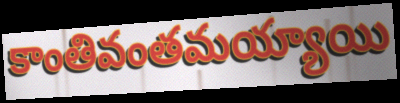
కాంతివంతమయ్యాయి